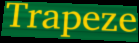
Trapeze